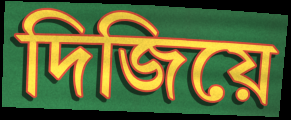
দিজিয়ে